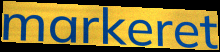
markeret